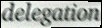
delegation